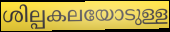
ശില്പകലയോടുള്ള